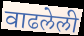
वाढलेली